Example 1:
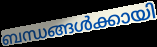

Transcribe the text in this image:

ബന്ധങ്ങൾക്കായി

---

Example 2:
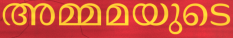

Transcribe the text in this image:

അമ്മമയുടെ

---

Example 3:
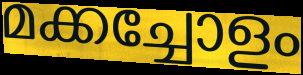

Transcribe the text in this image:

മക്കച്ചോളം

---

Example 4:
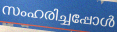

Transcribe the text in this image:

സംഹരിച്ചപ്പോൾ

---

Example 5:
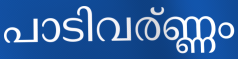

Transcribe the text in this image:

പാടിവര്ണ്ണം